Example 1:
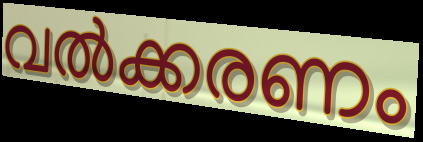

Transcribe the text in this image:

വൽക്കരണം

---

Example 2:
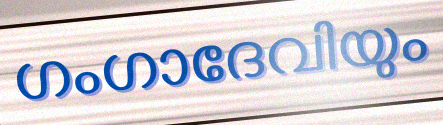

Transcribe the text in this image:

ഗംഗാദേവിയും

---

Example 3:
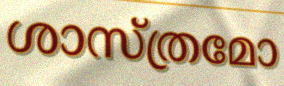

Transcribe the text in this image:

ശാസ്ത്രമോ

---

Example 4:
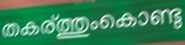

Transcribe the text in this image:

തകര്ത്തുംകൊണ്ടു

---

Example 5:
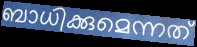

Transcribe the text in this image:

ബാധിക്കുമെന്നത്